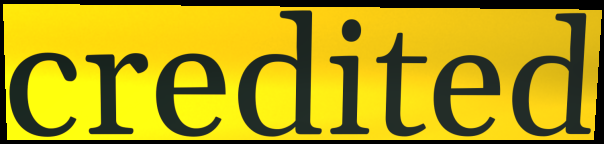
credited